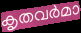
കൃതവർമാ